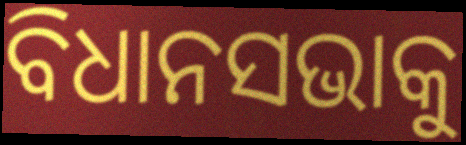
ବିଧାନସଭାକୁ